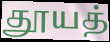
தூயத்